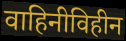
वाहिनीविहीन